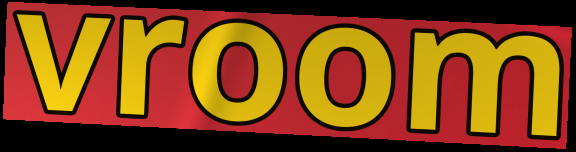
vroom